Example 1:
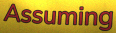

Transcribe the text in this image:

Assuming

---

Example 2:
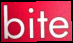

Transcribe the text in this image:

bite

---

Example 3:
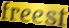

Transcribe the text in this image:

freest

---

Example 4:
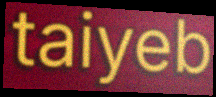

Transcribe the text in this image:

taiyeb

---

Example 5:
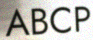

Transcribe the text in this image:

ABCP